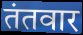
तंतवार